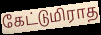
கேட்டுமிராத